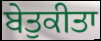
ਬੇਤੁਕੀਤਾ